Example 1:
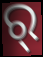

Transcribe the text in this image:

ର୍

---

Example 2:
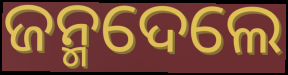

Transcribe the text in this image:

ଜନ୍ମଦେଲେ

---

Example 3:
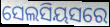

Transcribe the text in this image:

ସେଲସିୟସରେ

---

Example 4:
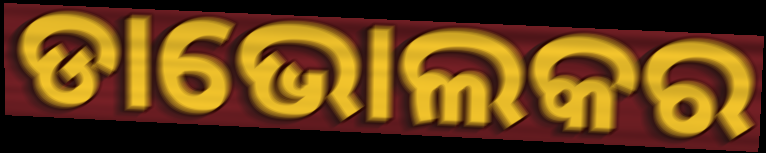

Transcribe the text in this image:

ଡାଭୋଲକର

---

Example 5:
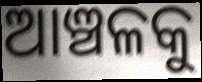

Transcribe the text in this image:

ଆଞ୍ଚଳକୁ